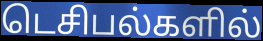
டெசிபல்களில்